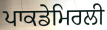
ਪਾਕਡੇਮਿਰਲੀ